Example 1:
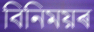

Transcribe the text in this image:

বিনিময়ৰ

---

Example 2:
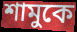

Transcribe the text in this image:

শামুকে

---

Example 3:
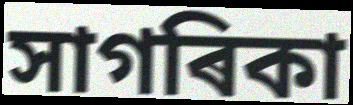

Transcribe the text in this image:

সাগৰিকা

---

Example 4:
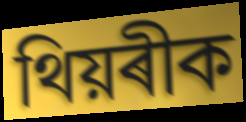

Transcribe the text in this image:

থিয়ৰীক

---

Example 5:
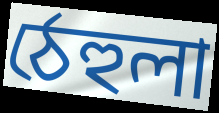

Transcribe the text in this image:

ঠেহুলা